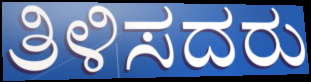
ತಿಳಿಸದರು